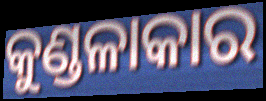
କୁଣ୍ଡଳାକାର